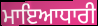
ਮਾਇਆਧਾਰੀ